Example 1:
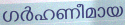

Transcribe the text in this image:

ഗർഹണീമായ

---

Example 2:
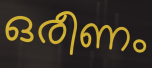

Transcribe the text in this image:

ഒരീണം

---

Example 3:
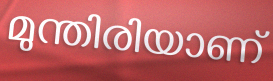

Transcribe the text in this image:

മുന്തിരിയാണ്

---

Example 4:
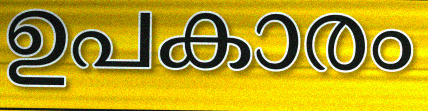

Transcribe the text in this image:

ഉപകാരം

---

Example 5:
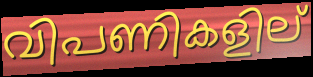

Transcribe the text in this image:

വിപണികളില്